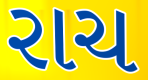
રાચ